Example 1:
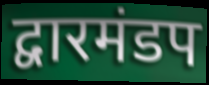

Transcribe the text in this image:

द्वारमंडप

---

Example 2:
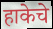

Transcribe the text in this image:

हाकेचे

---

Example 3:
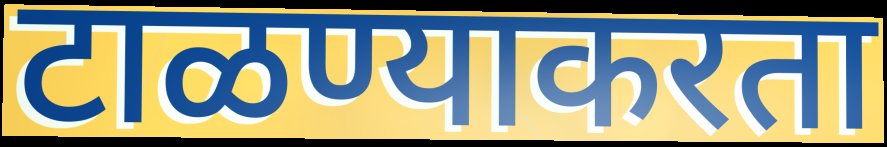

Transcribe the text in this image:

टाळण्याकरता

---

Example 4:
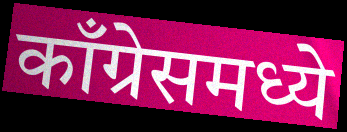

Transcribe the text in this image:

काँग्रेसमध्ये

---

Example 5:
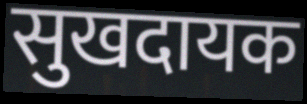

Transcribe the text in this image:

सुखदायक